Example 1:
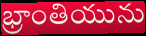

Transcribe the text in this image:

భ్రాంతియును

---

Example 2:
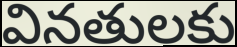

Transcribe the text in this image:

వినతులకు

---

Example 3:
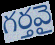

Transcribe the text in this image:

గర్తవై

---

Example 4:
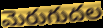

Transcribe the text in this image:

మెరుగుదల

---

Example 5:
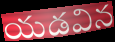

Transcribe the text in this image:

యడవిన